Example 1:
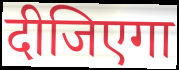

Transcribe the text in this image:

दीजिएगा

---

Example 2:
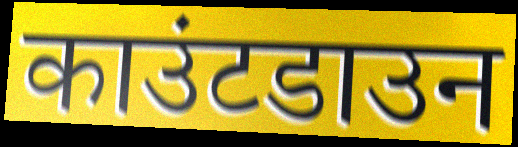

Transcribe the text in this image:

काउंटडाउन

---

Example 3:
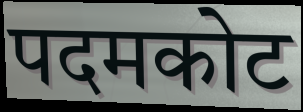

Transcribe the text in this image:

पदमकोट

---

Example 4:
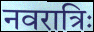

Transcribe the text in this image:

नवरात्रिः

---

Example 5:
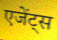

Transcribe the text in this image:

एजेंट्स